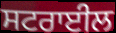
ਸਟਰਾਈਲ